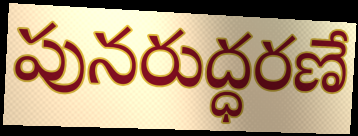
పునరుద్ధరణే